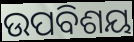
ଉପବିଶୟ